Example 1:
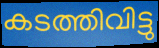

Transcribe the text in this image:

കടത്തിവിട്ടു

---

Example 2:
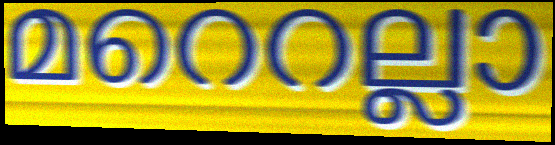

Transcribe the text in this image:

മറെറല്ലാ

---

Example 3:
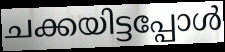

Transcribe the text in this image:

ചക്കയിട്ടപ്പോൾ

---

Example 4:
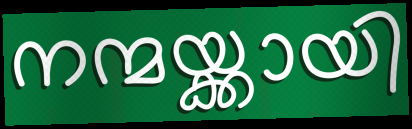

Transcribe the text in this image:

നന്മയ്ക്കായി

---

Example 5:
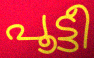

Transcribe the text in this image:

പൂട്ടീ